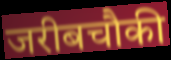
जरीबचौकी